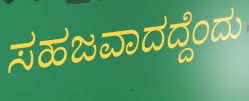
ಸಹಜವಾದದ್ದೆಂದು